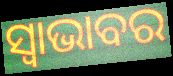
ସ୍ୱାଭାବର